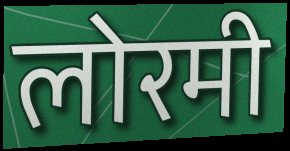
लोरमी